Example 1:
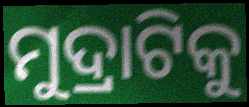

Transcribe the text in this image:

ମୁଦ୍ରାଟିକୁ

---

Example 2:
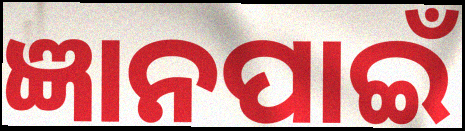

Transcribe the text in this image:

ଜ୍ଞାନପାଇଁ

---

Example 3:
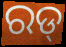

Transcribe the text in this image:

ରଡ୍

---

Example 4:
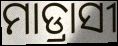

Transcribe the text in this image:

ମାଡ୍ରାସୀ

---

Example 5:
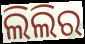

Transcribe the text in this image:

ଲିଲିର